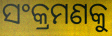
ସଂକ୍ରମଣକୁ